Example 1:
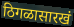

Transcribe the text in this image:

ठिगळासारखं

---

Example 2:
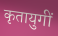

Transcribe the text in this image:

कृतायुगीं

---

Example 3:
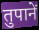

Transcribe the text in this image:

तुपानें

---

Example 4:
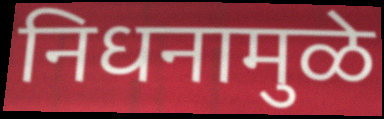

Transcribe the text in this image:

निधनामुळे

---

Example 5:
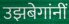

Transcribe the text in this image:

उझबेगांनीं